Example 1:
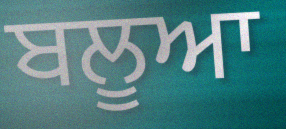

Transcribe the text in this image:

ਬਲੂਆ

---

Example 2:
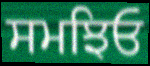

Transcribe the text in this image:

ਸਮਝਿਓ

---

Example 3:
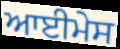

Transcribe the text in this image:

ਆਈਮੇਸ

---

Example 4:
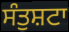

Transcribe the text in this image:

ਸੰਤੁਸ਼ਟਾ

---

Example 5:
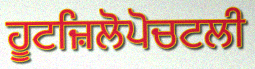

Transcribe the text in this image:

ਹੂਟਜ਼ਿਲੋਪੋਚਟਲੀ